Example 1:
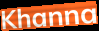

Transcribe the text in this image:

Khanna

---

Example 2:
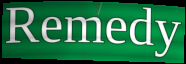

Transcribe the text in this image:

Remedy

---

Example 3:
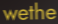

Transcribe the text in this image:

wethe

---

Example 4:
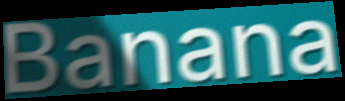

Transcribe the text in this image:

Banana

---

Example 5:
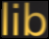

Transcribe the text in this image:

lib